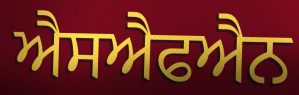
ਐਸਐਫਐਨ